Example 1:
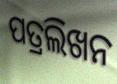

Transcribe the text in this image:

ପତ୍ରଲିଖନ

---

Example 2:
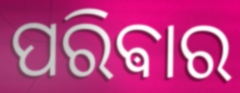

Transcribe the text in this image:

ପରିଵାର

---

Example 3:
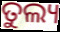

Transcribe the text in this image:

ତୁଲ୍ୟ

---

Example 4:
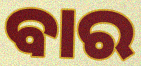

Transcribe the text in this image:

ବାର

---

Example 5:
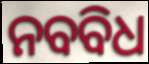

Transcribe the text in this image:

ନବବିଧ